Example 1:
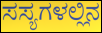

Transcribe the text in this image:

ಸಸ್ಯಗಳಲ್ಲಿನ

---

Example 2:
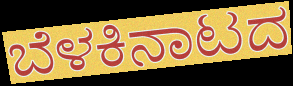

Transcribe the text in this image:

ಬೆಳಕಿನಾಟದ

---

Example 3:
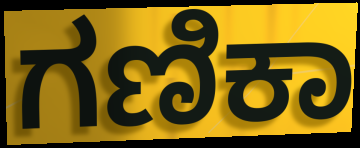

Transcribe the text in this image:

ಗಣಿಕಾ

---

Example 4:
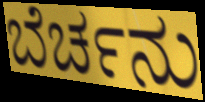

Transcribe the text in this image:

ಬೆರ್ಚನು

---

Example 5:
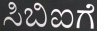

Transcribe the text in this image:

ಸಿಬಿಐಗೆ